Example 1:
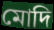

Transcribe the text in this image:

মোদি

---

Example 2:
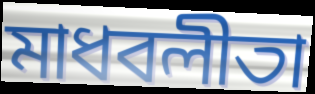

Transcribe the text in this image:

মাধবলীতা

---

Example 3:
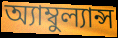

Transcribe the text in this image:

অ্যাম্বুল্যান্স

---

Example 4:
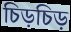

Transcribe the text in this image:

চিড়চিড়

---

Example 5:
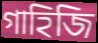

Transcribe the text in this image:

গাহিজি